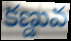
కణ్డువ